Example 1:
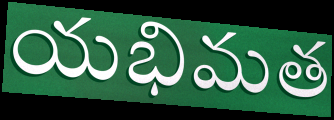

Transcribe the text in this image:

యభిమత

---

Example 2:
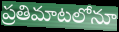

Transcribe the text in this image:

ప్రతిమాటలోనూ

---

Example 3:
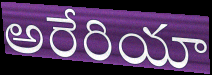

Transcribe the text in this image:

అరేరియా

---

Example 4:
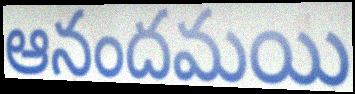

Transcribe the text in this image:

ఆనందమయి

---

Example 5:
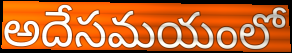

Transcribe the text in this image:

అదేసమయంలో